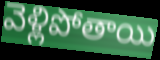
వెళ్లిపోతాయి